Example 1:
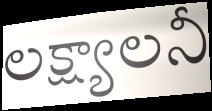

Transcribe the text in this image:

లక్ష్యాలనీ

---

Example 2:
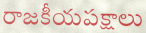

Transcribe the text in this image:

రాజకీయపక్షాలు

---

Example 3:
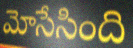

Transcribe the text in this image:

మోసేసింది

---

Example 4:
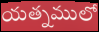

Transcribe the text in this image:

యత్నములో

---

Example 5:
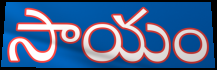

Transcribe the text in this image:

సాయం